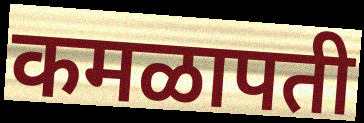
कमळापती